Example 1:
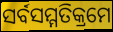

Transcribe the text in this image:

ସର୍ବସମ୍ମତିକ୍ରମେ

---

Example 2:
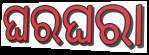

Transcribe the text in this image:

ଘରଘରା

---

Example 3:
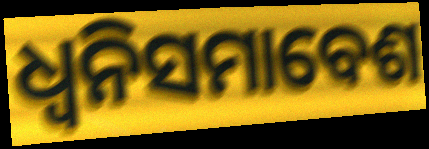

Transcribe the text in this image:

ଧ୍ୱନିସମାବେଶ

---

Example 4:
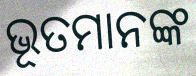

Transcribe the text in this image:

ଭୂତମାନଙ୍କ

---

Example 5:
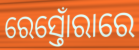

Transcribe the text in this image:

ରେସ୍ତୋଁରାରେ